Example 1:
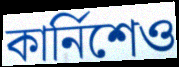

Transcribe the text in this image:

কার্নিশেও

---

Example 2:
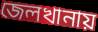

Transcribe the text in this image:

জেলখানায়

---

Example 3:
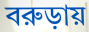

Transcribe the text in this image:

বরুড়ায়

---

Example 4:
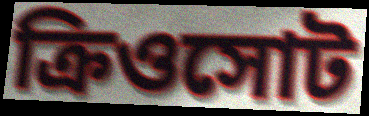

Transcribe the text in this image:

ক্রিওসোট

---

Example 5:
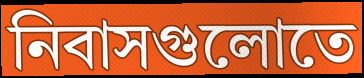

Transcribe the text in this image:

নিবাসগুলোতে